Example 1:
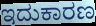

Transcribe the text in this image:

ಇದುಕಾರಣ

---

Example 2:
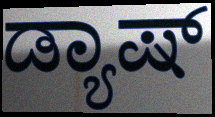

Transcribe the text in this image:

ಡ್ಯಾಷ್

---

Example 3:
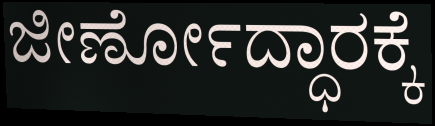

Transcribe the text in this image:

ಜೀರ್ಣೋದ್ಧಾರಕ್ಕೆ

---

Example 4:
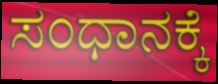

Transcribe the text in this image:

ಸಂಧಾನಕ್ಕೆ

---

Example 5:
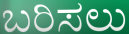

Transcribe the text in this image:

ಬರಿಸಲು